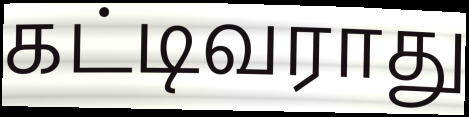
கட்டிவராது